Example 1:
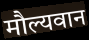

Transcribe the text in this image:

मौल्यवान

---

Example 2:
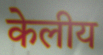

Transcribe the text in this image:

केलीय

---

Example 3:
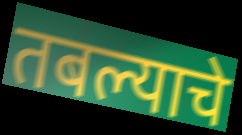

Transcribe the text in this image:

तबल्याचे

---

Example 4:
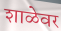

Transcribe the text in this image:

शाळेवर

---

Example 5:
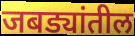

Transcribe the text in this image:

जबड्यांतील